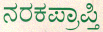
ನರಕಪ್ರಾಪ್ತಿ